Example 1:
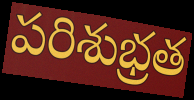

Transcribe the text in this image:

పరిశుభ్రత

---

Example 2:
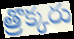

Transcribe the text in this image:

త్రొక్కరు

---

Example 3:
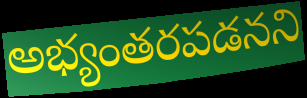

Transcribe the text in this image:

అభ్యంతరపడనని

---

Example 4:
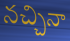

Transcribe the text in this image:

నచ్చినా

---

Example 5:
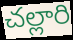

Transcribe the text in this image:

చల్లారి